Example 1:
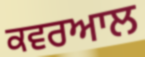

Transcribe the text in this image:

ਕਵਰਆਲ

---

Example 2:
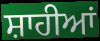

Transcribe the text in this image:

ਸ਼ਾਹੀਆਂ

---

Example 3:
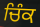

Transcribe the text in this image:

ਚਿੰਕ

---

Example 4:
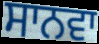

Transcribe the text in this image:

ਸਾਨਵਾ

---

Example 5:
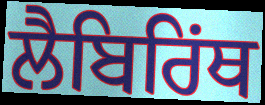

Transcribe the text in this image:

ਲੈਬਿਰਿਂਥ